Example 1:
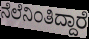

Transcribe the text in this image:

ನೆಲೆನಿಂತಿದ್ದಾರೆ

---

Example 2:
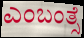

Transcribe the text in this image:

ಎಂಬಂತ್ಸೆ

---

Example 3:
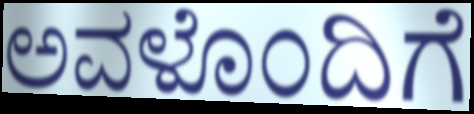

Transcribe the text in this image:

ಅವಳೊಂದಿಗೆ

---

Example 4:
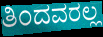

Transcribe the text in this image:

ತಿಂದವರಲ್ಲ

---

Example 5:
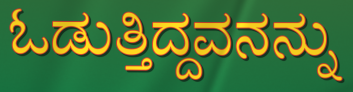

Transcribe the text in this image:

ಓಡುತ್ತಿದ್ದವನನ್ನು